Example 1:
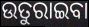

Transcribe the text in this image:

ଉତୁରାଇବା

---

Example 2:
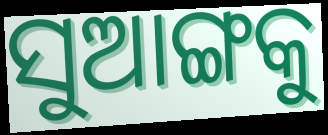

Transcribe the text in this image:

ସୁଆଙ୍ଗକୁ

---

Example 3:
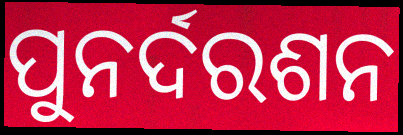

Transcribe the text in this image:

ପୁନର୍ଦରଶନ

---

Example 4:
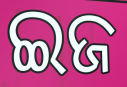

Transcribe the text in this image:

ଇଜ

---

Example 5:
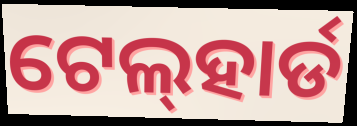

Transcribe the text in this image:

ଟେଲ୍‍ହାର୍ଡ